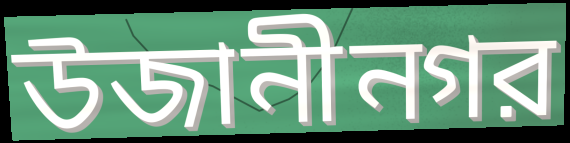
উজানীনগর